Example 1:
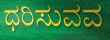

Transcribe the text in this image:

ಧರಿಸುವವ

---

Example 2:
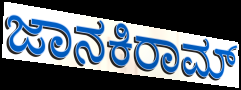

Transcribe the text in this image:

ಜಾನಕಿರಾಮ್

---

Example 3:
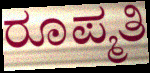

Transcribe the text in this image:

ರೂಪ್ಮತಿ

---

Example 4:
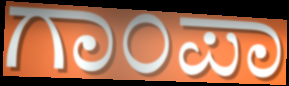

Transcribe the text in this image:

ಗಾಂಪಾ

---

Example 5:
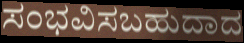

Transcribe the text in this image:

ಸಂಭವಿಸಬಹುದಾದ